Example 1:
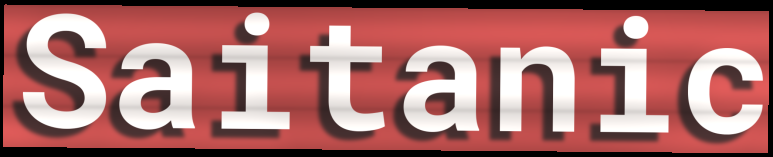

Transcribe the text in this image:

Saitanic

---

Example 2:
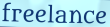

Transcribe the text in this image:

freelance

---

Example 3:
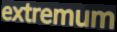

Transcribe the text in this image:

extremum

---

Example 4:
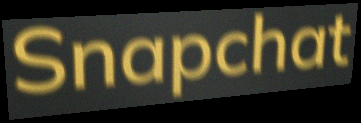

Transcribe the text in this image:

Snapchat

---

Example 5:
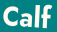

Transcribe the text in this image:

Calf